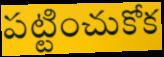
పట్టించుకోక